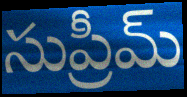
సుప్రీమ్